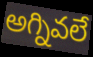
అగ్నివలే